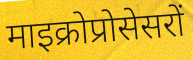
माइक्रोप्रोसेसरों